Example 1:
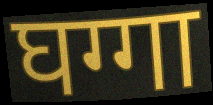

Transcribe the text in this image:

घग्गा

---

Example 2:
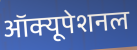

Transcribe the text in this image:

ऑक्यूपेशनल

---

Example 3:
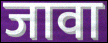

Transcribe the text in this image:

जावा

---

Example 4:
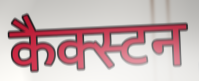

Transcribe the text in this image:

कैक्स्टन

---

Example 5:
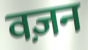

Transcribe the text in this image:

वज़न